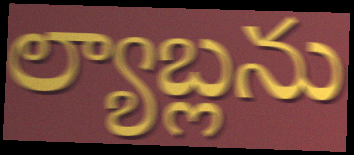
ల్యాబ్లను